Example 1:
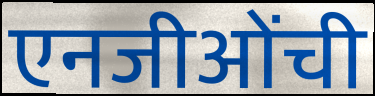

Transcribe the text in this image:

एनजीओंची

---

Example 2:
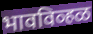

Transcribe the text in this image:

भावविव्हळ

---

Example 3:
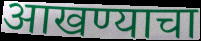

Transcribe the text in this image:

आखण्याचा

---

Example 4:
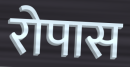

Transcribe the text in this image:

रोपास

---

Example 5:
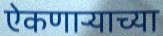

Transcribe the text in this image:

ऐकणाऱ्याच्या